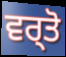
ਵਰ੍ਤੋ